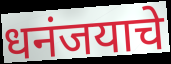
धनंजयाचे